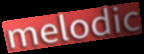
melodic